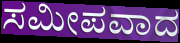
ಸಮೀಪವಾದ